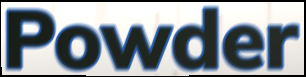
Powder